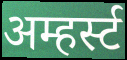
अम्हर्स्ट